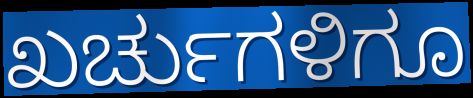
ಖರ್ಚುಗಳಿಗೂ